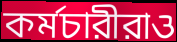
কর্মচারীরাও